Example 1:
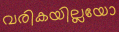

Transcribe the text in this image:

വരികയില്ലയോ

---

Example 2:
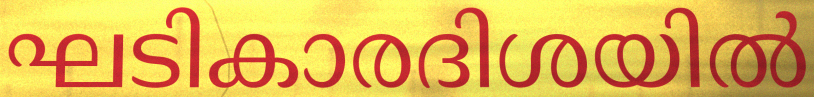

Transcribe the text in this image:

ഘടികാരദിശയിൽ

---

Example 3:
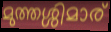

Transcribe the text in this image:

മുത്തശ്ശിമാര്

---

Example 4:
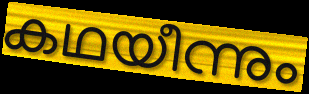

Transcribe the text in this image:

കഥയീന്നും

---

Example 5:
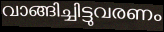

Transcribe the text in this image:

വാങ്ങിച്ചിട്ടുവരണം